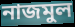
নাজমুল